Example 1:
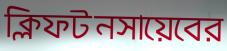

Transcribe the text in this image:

ক্লিফটনসায়েবের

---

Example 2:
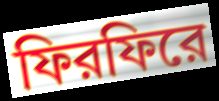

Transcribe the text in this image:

ফিরফিরে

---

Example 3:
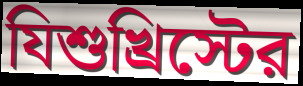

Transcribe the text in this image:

যিশুখ্রিস্টের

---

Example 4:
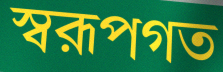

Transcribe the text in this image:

স্বরূপগত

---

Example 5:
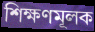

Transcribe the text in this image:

শিক্ষণমূলক